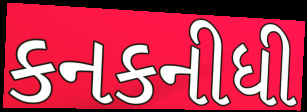
કનકનીધી